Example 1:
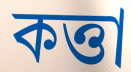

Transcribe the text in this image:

কত্তা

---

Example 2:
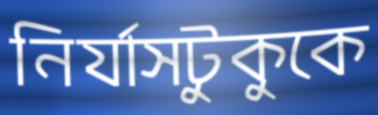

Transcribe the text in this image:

নির্যাসটুকুকে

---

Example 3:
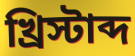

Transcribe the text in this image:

খ্রিস্টাব্দ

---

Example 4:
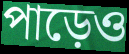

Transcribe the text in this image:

পাড়েও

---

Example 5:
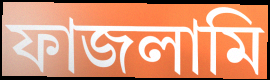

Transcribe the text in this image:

ফাজলামি